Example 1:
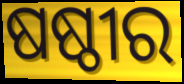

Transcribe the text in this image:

ଷଷ୍ଠୀର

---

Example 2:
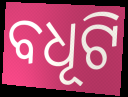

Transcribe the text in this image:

ବଧୂଟି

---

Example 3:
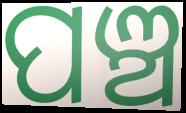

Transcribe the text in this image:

ପଞ୍ଚ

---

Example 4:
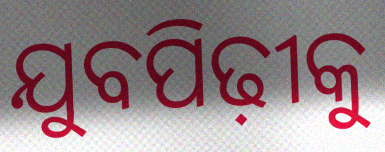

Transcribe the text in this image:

ଯୁବପିଢ଼ୀକୁ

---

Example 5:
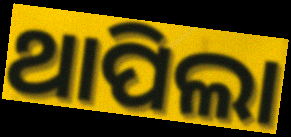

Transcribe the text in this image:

ଥାପିଲା